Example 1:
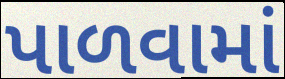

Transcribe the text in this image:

પાળવામાં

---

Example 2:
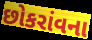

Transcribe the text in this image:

છોકરાંવના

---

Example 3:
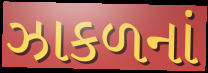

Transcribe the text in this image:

ઝાકળનાં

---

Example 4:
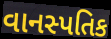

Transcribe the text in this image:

વાનસ્પતિક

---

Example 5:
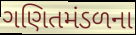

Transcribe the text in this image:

ગણિતમંડળના